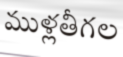
ముళ్లతీగల